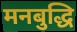
मनबुद्धि